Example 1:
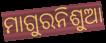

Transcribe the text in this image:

ମାଗୁରନିଶୁଆ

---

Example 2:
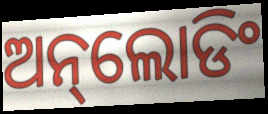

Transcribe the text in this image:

ଅନ୍‌ଲୋଡିଂ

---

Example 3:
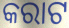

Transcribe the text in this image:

କରାଟ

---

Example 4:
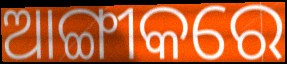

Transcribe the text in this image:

ଆଙ୍ଗୀକରେ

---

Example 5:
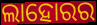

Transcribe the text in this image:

ଲାହୋରର